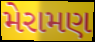
મેરામણ